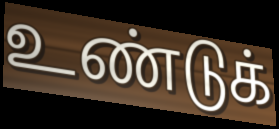
உண்டுக்